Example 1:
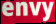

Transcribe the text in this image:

envy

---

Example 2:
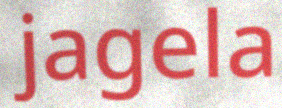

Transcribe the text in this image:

jagela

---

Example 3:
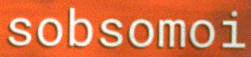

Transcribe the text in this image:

sobsomoi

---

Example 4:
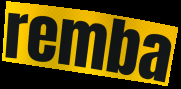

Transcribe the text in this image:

remba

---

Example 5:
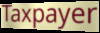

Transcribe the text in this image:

Taxpayer